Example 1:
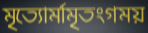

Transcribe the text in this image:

মৃত্যোর্মামৃতংগময়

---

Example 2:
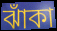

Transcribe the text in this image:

ঝাঁকা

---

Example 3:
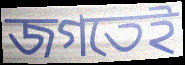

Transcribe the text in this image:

জগতেই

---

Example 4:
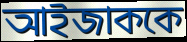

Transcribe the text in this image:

আইজাককে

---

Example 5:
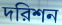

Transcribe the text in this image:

দরিশন